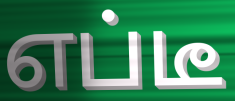
எப்டீ